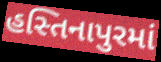
હસ્તિનાપુરમાં